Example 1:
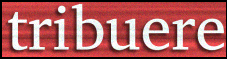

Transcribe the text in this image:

tribuere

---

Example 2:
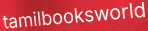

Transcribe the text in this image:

tamilbooksworld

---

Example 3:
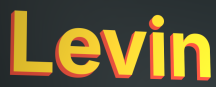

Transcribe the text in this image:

Levin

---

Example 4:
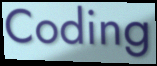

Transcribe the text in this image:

Coding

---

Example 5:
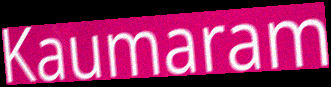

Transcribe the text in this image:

Kaumaram